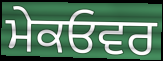
ਮੇਕਓਵਰ